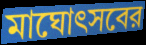
মাঘোৎসবের